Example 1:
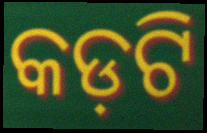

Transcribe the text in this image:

କଡ଼ଟି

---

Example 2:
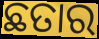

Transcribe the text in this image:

ଛତାର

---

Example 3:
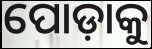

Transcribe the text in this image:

ପୋଡ଼ାକୁ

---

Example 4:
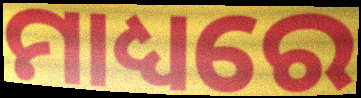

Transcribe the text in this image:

ମାଧ୍ୟରେ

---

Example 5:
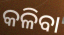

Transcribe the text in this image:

କଳିବା